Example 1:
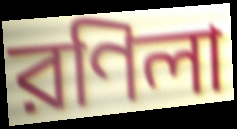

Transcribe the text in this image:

রণিলা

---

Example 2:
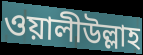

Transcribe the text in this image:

ওয়ালীউল্লাহ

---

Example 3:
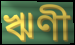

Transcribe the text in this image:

ঋণী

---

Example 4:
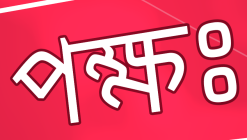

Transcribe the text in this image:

পক্ষঃ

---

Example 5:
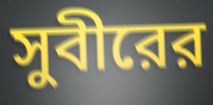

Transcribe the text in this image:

সুবীরের